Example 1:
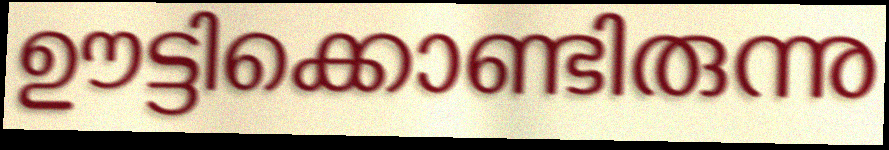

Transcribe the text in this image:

ഊട്ടിക്കൊണ്ടിരുന്നു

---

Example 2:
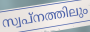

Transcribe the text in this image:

സ്വപ്നത്തിലും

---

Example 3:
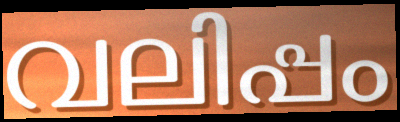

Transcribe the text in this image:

വലിപ്പം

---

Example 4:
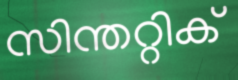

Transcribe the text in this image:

സിന്തറ്റിക്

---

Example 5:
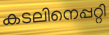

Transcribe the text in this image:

കടലിനെപ്പറ്റി